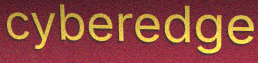
cyberedge